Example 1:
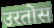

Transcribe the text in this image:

उरतोस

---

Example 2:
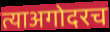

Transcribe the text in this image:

त्याअगोदरच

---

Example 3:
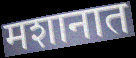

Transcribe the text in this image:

मशानात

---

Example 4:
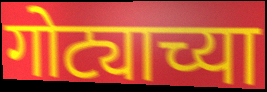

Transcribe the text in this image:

गोट्याच्या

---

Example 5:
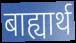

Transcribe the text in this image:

बाह्यार्थ